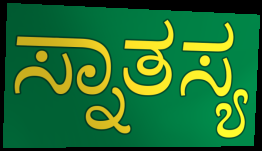
ಸ್ನಾತಸ್ಯ